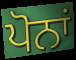
ਪੋਨਾਂ